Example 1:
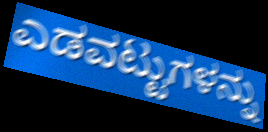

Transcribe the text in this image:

ಎಡವಟ್ಟುಗಳನ್ನು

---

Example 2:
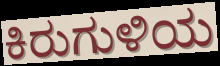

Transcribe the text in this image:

ಕಿರುಗುಳಿಯ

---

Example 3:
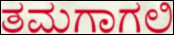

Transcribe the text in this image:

ತಮಗಾಗಲಿ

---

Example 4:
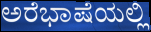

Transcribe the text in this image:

ಅರೆಭಾಷೆಯಲ್ಲಿ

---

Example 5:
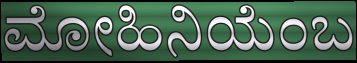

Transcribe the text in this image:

ಮೋಹಿನಿಯೆಂಬ